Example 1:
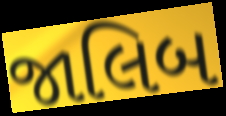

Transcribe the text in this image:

જાલિબ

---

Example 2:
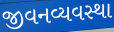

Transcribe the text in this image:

જીવનવ્યવસ્થા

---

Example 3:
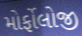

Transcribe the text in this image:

મોર્ફોલોજી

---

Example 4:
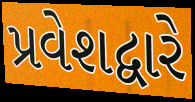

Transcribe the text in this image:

પ્રવેશદ્વારે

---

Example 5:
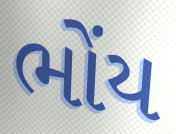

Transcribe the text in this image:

ભોંય